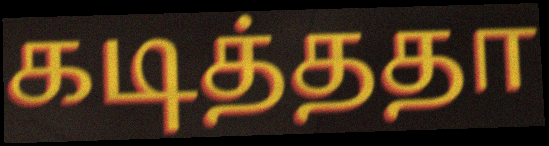
கடித்ததா